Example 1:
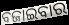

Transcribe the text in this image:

ବଜାଇବାର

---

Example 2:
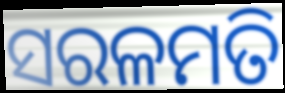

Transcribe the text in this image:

ସରଳମତି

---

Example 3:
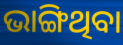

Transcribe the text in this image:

ଭାଙ୍ଗିଥିବା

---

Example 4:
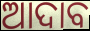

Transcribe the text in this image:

ଆଦାବ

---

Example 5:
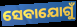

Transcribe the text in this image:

ସେବାଯୋଗୁଁ